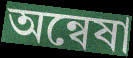
অন্বেষা